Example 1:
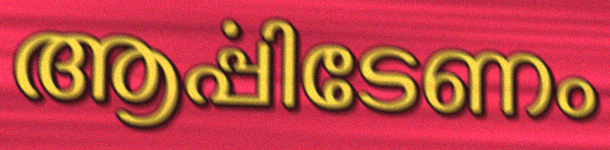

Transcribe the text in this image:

ആൎപ്പിടേണം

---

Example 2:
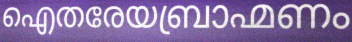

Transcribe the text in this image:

ഐതരേയബ്രാഹ്മണം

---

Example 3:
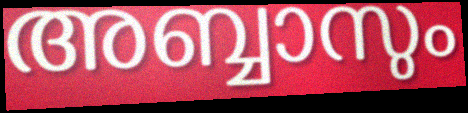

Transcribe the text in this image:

അബ്ബാസും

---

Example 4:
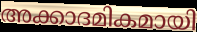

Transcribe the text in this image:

അക്കാദമികമായി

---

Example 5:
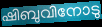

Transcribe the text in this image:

ഷിബുവിനോടു